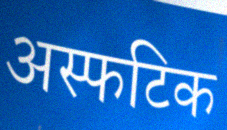
अस्फटिक